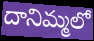
దానిమ్మలో